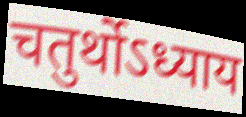
चतुर्थोऽध्याय